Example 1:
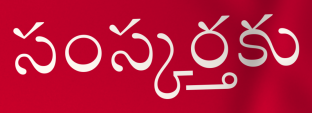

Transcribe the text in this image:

సంస్కర్తకు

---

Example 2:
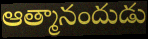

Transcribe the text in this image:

ఆత్మానందుడు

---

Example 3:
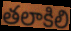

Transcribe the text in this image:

తలాకిలి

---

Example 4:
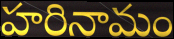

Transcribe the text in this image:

హరినామం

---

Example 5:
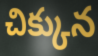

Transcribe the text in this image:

చిక్కున